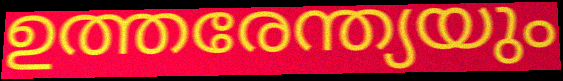
ഉത്തരേന്ത്യയും